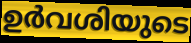
ഉർവശിയുടെ